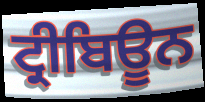
ਟ੍ਰੀਬਿਊਨ